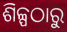
ଶିଳ୍ପଠାରୁ